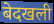
बेदखली